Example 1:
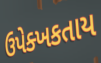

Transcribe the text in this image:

ઉપેક્ખકતાય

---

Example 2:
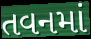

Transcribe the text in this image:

તવનમાં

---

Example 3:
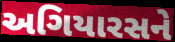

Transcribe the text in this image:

અગિયારસને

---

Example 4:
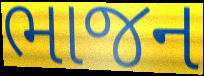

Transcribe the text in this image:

ભાજન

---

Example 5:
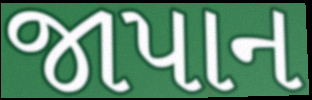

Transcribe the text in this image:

જાપાન